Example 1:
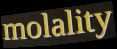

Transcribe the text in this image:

molality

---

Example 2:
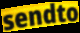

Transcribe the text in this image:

sendto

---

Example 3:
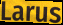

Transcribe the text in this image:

Larus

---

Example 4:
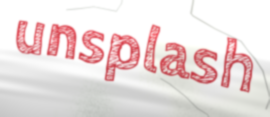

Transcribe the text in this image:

unsplash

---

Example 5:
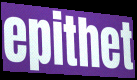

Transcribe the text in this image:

epithet